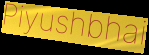
Piyushbhai